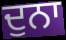
ਦੁਨਾ